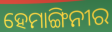
ହେମାଙ୍ଗିନୀର